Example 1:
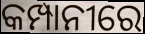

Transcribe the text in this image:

କମ୍ପାନୀରେ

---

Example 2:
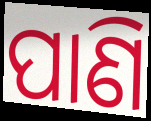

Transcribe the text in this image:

ପାଣି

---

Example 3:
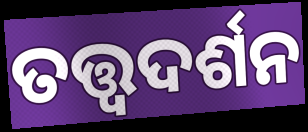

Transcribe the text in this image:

ତତ୍ତ୍ଵଦର୍ଶନ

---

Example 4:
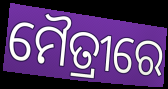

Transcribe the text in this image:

ମୈତ୍ରୀରେ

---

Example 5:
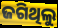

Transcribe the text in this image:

ଜଗିଥିଲୁ